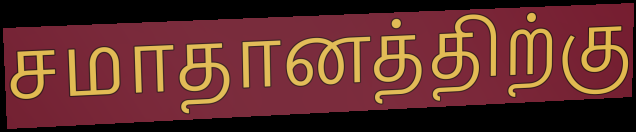
சமாதானத்திற்கு